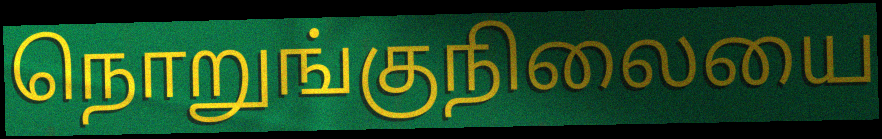
நொறுங்குநிலையை